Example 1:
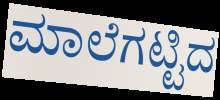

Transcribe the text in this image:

ಮಾಲೆಗಟ್ಟಿದ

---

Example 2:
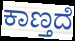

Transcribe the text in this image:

ಕಾಣ್ತದೆ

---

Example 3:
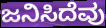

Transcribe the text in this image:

ಜನಿಸಿದೆವು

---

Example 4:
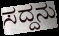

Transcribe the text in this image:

ಸದ್ದನು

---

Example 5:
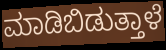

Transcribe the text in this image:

ಮಾಡಿಬಿಡುತ್ತಾಳೆ